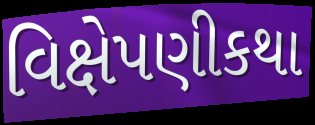
વિક્ષેપણીકથા